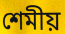
শেমীয়